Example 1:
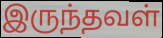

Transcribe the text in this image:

இருந்தவள்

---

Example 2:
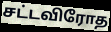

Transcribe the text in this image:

சட்டவிரோத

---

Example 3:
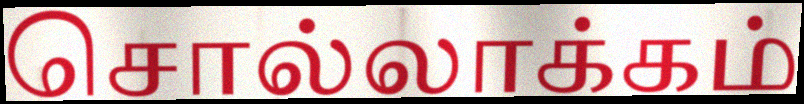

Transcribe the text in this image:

சொல்லாக்கம்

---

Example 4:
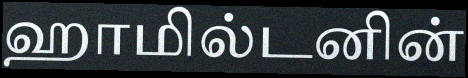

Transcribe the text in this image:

ஹாமில்டனின்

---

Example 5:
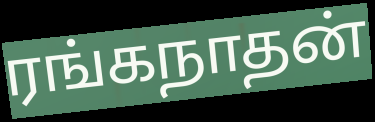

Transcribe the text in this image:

ரங்கநாதன்